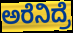
ಅರೆನಿದ್ರೆ